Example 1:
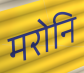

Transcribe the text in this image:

मरोनि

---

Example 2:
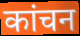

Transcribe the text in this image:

कांचन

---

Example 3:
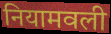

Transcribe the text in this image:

नियामवली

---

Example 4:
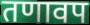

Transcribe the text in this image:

तणावप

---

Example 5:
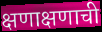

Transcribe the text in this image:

क्षणाक्षणाची